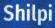
Shilpi